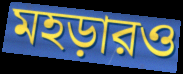
মহড়ারও